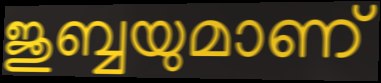
ജുബ്ബയുമാണ്